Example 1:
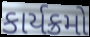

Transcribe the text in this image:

કાર્યક્રમો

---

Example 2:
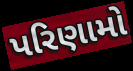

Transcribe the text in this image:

પરિણામો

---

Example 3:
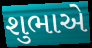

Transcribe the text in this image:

શુભાએ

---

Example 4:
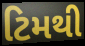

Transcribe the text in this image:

ટિમથી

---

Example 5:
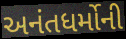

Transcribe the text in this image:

અનંતધર્મોની